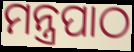
ମନ୍ତ୍ରପାଠ